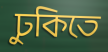
ঢুকিতে